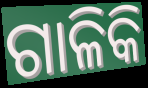
ଗାଳିକି